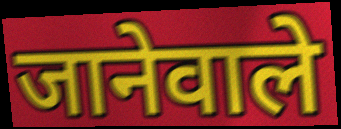
जानेवाले